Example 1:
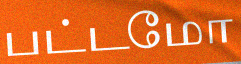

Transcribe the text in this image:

பட்டமோ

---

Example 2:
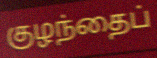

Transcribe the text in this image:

குழந்தைப்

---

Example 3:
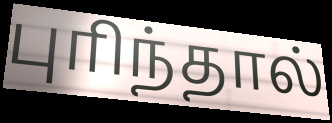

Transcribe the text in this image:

புரிந்தால்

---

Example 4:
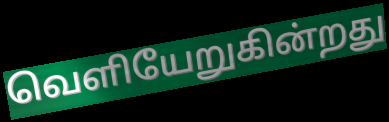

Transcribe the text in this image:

வெளியேறுகின்றது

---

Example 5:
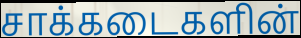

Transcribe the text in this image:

சாக்கடைகளின்